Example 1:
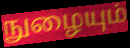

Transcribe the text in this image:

நுழையும்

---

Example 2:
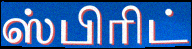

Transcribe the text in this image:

ஸ்பிரிட்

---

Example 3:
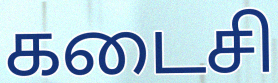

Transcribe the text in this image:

கடைசி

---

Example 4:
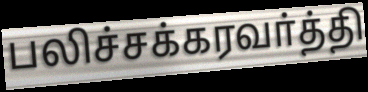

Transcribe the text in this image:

பலிச்சக்கரவர்த்தி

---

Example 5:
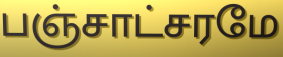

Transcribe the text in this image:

பஞ்சாட்சரமே